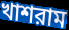
খাশরাম